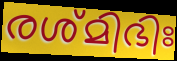
രശ്മിഭിഃ